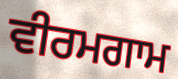
ਵੀਰਮਗਾਮ